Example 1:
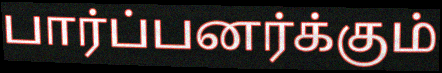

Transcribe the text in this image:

பார்ப்பனர்க்கும்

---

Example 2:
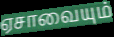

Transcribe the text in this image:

ஏசாவையும்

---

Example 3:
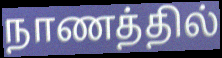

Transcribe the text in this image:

நாணத்தில்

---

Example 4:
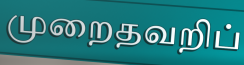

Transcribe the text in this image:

முறைதவறிப்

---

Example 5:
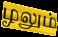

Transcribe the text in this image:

ழலும்